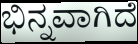
ಭಿನ್ನವಾಗಿದೆ